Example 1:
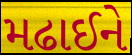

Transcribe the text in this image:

મઢાઈને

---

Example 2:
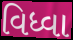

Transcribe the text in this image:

વિધ્વા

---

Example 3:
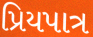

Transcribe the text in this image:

પ્રિયપાત્ર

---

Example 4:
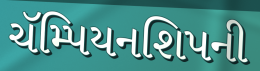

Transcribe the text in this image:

ચૅમ્પિયનશિપની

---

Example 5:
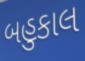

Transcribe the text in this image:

બહુકાલ